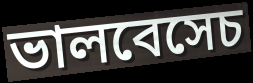
ভালবেসেচ